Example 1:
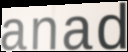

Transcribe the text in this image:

anad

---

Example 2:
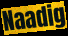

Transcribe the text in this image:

Naadig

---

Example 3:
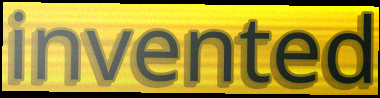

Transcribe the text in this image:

invented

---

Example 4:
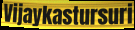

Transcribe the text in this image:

Vijaykastursuri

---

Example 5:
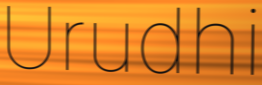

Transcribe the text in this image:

Urudhi